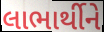
લાભાર્થીને